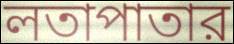
লতাপাতার